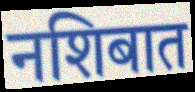
नशिबात